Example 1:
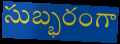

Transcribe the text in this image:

సుబ్భరంగా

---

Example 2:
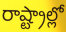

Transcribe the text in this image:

రాష్ట్రాల్లో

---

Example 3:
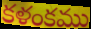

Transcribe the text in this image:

కళంకము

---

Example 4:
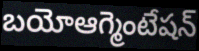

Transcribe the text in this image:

బయోఆగ్మెంటేషన్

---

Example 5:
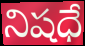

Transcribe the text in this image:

నిషధే